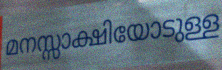
മനസ്സാക്ഷിയോടുള്ള